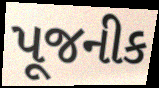
પૂજનીક